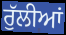
ਰੁੱਲੀਆਂ